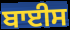
ਬਾਈਸ